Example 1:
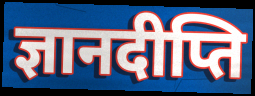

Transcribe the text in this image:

ज्ञानदीप्ति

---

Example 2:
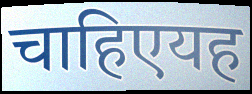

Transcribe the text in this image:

चाहिएयह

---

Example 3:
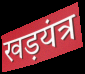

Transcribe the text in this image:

खड़यंत्र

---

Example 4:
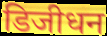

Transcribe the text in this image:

डिजीधन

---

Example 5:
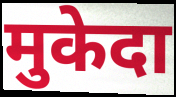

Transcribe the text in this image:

मुकेदा